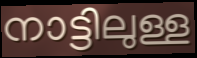
നാട്ടിലുള്ള